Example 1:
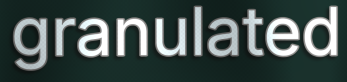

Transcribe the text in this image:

granulated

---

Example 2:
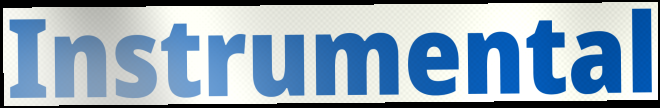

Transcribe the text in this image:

Instrumental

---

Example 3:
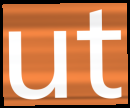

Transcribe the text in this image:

ut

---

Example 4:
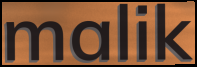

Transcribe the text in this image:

malik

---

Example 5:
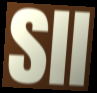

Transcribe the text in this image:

SII